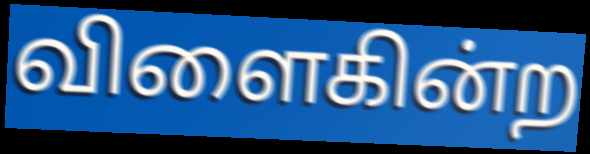
விளைகின்ற